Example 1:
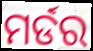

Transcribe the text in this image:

ମର୍ଡର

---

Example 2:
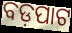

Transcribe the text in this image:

ବଡ଼ପାଟ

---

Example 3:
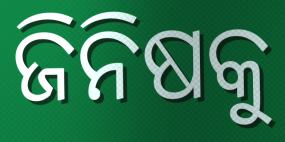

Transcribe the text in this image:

ଜିନିଷକୁ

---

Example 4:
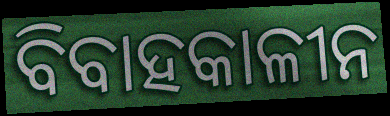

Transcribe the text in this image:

ବିବାହକାଳୀନ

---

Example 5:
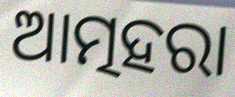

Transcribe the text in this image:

ଆତ୍ମହରା